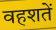
वहशतें